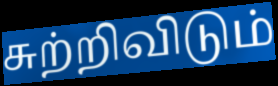
சுற்றிவிடும்